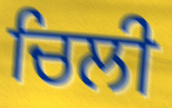
ਚਿਲੀ